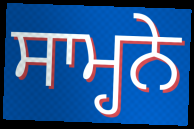
ਸਾਮ੍ਹਨੇ